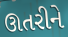
ઊતરીને